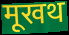
मूखथ